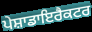
ਪੇਸ਼ਾਡਾਇਰੈਕਟਰ